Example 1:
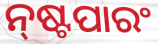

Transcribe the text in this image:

ନ୍‌ଷ୍ଟପାରଂ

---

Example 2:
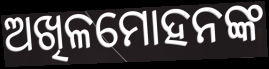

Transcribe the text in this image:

ଅଖିଳମୋହନଙ୍କ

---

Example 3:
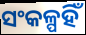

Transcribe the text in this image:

ସଂକଳ୍ପହିଁ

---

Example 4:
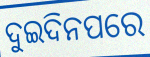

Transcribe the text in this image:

ଦୁଇଦିନପରେ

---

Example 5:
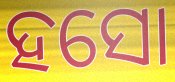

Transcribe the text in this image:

ହସୋ